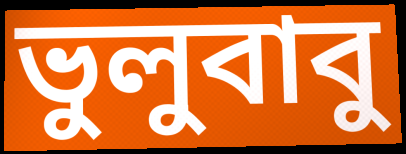
ভুলুবাবু